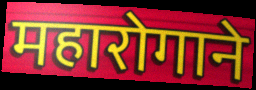
महारोगाने